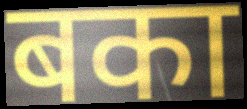
बका